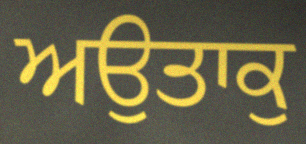
ਅਉਤਾਕੁ